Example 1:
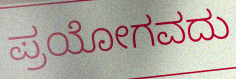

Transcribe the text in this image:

ಪ್ರಯೋಗವದು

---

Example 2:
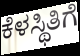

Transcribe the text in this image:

ಕೆಳಸ್ಥಿತಿಗೆ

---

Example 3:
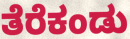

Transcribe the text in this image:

ತೆರೆಕಂಡು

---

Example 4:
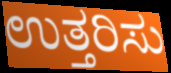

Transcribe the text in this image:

ಉತ್ತರಿಸು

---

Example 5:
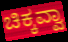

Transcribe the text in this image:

ಚಿಕ್ಕವ್ವಾ